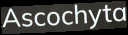
Ascochyta